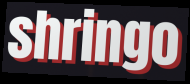
shringo